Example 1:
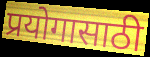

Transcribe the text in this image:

प्रयोगासाठी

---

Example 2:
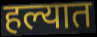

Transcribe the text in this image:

हल्यात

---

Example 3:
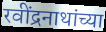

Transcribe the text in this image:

रवींद्रनाथांच्या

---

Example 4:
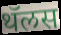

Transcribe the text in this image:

थॅलस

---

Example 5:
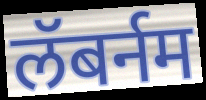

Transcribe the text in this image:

लॅबर्नम